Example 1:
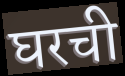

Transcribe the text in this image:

घरची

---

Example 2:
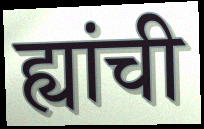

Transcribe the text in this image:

ह्यांची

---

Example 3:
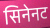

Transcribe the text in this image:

सिनेनट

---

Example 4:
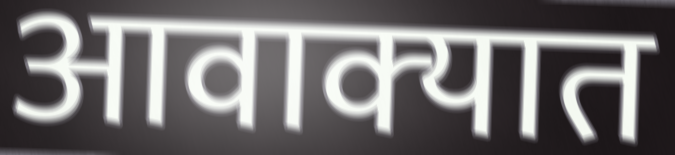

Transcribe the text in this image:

आवाक्‍यात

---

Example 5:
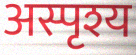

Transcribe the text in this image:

अस्पृश्य